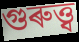
গুৰুত্ত্ব